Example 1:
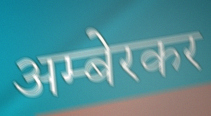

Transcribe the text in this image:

अम्बेरकर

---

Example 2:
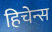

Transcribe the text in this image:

हिचेन्स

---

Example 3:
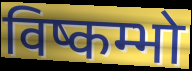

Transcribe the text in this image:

विष्कम्भो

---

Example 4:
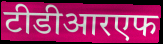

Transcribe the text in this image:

टीडीआरएफ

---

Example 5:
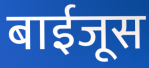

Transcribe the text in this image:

बाईजूस